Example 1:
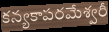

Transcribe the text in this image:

కన్యకాపరమేశ్వరీ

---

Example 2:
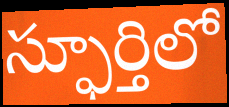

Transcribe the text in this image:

స్ఫూర్తిలో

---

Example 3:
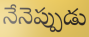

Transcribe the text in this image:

నేనెప్పుడు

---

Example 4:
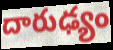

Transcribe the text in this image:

దారుఢ్యం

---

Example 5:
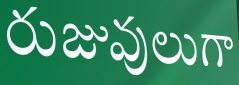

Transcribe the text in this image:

రుజువులుగా